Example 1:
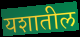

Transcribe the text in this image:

यशातील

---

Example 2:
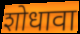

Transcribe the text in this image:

शोधावा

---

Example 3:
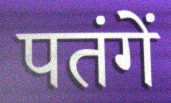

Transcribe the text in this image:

पतंगें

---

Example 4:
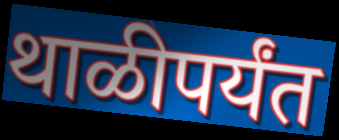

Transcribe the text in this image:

थाळीपर्यंत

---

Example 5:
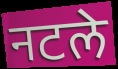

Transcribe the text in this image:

नटले